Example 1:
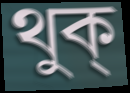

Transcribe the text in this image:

থুক্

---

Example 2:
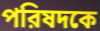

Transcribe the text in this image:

পরিষদকে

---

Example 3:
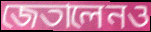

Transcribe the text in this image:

জেতালেনও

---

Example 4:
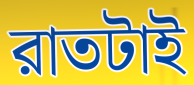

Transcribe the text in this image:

রাতটাই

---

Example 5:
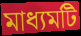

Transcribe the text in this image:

মাধ্যমটি